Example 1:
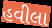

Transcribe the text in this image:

હવીલા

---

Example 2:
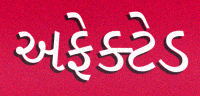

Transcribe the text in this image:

અફેક્ટેડ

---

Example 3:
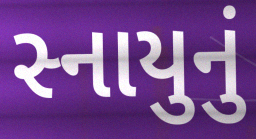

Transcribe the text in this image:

સ્નાયુનું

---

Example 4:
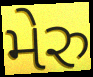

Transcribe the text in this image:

મેરુ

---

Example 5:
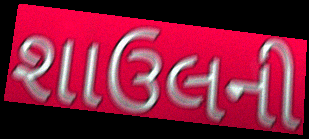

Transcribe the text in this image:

શાઉલની